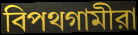
বিপথগামীরা